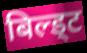
बिल्ड्ट